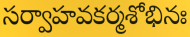
సర్వాహవకర్మశోభినః